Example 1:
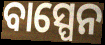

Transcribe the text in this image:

ବାସ୍ପେନ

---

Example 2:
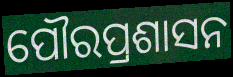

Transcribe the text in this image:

ପୌରପ୍ରଶାସନ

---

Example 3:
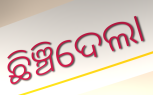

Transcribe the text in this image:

ଛିଞ୍ଚିଦେଲା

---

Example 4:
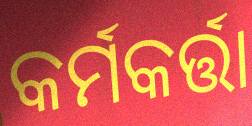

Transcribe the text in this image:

କର୍ମକର୍ତ୍ତା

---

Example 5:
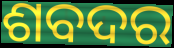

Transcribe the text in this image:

ଶବଦର